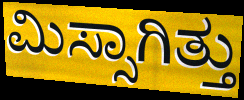
ಮಿಸ್ಸಾಗಿತ್ತು